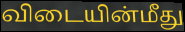
விடையின்மீது